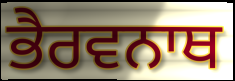
ਭੈਰਵਨਾਥ